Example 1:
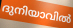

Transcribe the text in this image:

ദുനിയാവിൽ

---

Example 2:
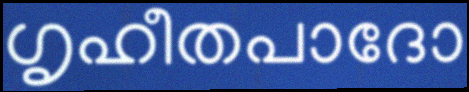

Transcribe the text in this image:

ഗൃഹീതപാദോ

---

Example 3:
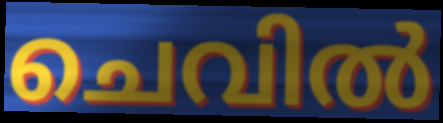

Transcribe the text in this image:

ചെവിൽ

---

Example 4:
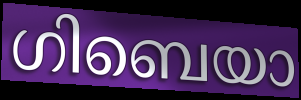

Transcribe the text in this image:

ഗിബെയാ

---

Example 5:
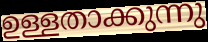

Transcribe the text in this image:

ഉള്ളതാക്കുന്നു